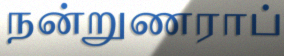
நன்றுணராப்